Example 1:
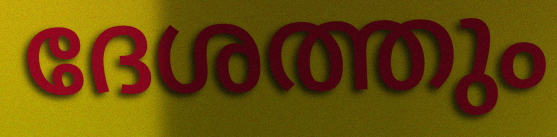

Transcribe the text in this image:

ദേശത്തും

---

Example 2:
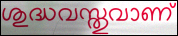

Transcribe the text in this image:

ശുദ്ധവസ്തുവാണ്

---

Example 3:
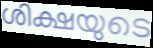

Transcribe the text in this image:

ശിക്ഷയുടെ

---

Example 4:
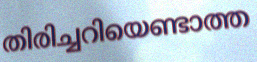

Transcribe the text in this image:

തിരിച്ചറിയെണ്ടാത്ത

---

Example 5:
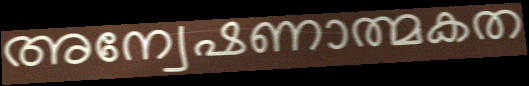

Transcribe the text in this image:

അന്വേഷണാത്മകത